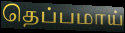
தெப்பமாய்